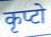
कृप्टो